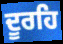
ਦੂਰਹਿ